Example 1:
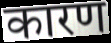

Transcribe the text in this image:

कारण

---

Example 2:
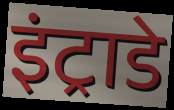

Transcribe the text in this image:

इंट्राडे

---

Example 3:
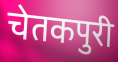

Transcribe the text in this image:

चेतकपुरी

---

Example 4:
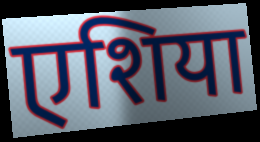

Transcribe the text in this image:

एशिया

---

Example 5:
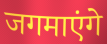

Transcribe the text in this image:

जगमाएंगे